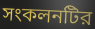
সংকলনটির